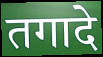
तगादे